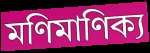
মণিমাণিক্য